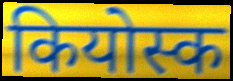
कियोस्क